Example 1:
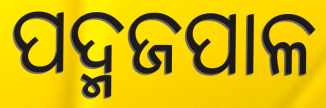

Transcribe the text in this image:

ପଦ୍ମଜପାଳ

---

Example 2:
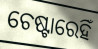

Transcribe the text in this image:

ଚେଷ୍ଟାରେହିଁ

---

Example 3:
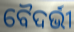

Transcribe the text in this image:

ବୈଦର୍ଭୀ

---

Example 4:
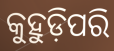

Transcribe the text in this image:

କୁହୁଡ଼ିପରି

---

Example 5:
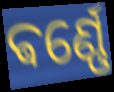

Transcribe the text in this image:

ଵର୍ଣ୍ଣେ